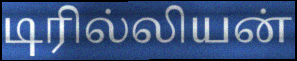
டிரில்லியன்